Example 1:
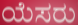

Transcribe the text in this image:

ಯೆಸರು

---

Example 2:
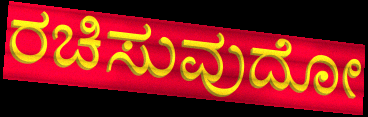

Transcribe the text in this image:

ರಚಿಸುವುದೋ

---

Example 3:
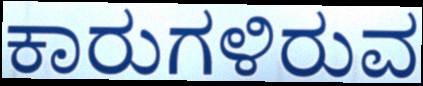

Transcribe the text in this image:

ಕಾರುಗಳಿರುವ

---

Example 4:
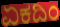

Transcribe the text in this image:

ಏಕದಿಂ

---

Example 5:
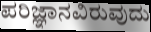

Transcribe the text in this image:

ಪರಿಜ್ಞಾನವಿರುವುದು